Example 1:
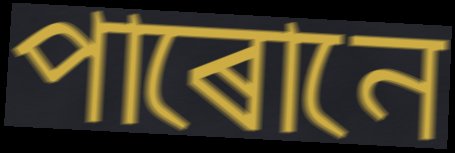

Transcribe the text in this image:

পাৰোনে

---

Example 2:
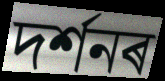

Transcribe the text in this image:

দৰ্শনৰ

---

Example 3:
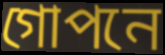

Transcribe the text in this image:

গোপনে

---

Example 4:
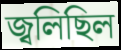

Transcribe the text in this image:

জ্বলিছিল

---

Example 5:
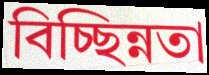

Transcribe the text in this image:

বিচ্ছিন্নতা